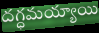
దగ్ధమయ్యాయి